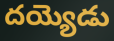
దయ్యెడు